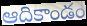
ఆదికాండం